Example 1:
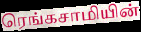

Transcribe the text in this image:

ரெங்கசாமியின்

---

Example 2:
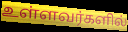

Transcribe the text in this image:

உள்ளவர்களில்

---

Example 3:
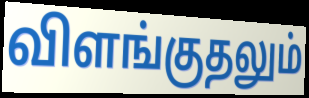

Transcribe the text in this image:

விளங்குதலும்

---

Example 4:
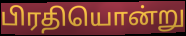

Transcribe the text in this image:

பிரதியொன்று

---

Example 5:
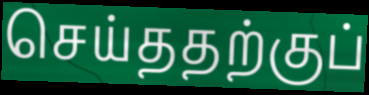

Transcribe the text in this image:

செய்ததற்குப்